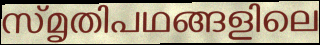
സ്മൃതിപഥങ്ങളിലെ